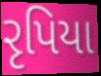
રૃપિયા